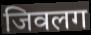
जिवलग